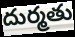
దుర్మతు